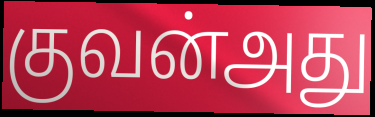
குவன்அது